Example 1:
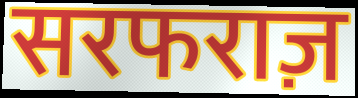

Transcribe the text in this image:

सरफराज़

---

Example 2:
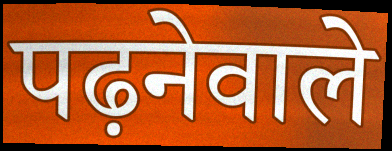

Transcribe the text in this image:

पढ़नेवाले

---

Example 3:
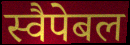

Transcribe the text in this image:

स्वैपेबल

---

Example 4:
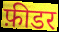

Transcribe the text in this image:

फ़ीडर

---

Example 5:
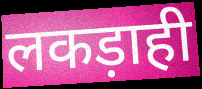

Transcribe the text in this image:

लकड़ाही